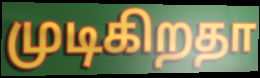
முடிகிறதா